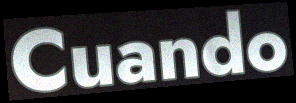
Cuando